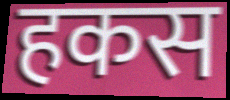
हकस